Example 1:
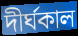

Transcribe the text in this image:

দীৰ্ঘকাল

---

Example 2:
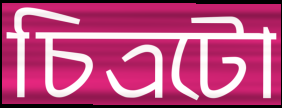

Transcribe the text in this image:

চিত্ৰটো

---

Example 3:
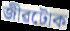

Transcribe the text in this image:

জীৱটোক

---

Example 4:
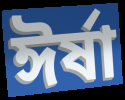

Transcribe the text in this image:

ঈৰ্ষা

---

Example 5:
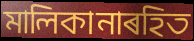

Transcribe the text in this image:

মালিকানাৰহিত